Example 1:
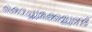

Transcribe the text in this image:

കൊച്ചുമക്കളുണ്ട്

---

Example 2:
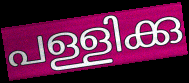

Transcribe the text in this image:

പള്ളിക്കു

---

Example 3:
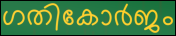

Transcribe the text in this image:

ഗതികോർജം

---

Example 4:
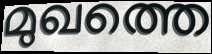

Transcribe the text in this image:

മുഖത്തെ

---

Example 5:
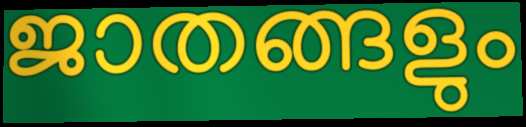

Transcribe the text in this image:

ജാതങ്ങളും